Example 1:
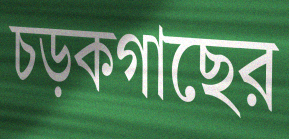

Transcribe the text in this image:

চড়কগাছের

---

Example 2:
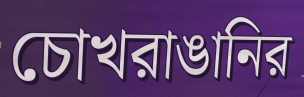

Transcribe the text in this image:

চোখরাঙানির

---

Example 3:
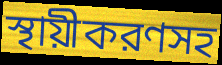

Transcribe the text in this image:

স্থায়ীকরণসহ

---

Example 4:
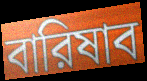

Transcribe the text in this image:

বারিষাব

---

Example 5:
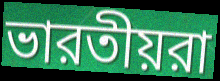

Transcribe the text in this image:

ভারতীয়রা